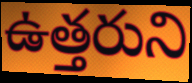
ఉత్తరుని